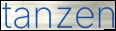
tanzen